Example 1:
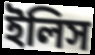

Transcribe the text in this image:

ইলিস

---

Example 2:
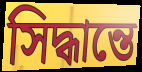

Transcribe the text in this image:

সিদ্ধান্তে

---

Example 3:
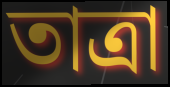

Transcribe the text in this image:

তাত্রা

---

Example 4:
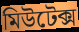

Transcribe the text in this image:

মিউটেক্স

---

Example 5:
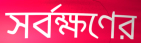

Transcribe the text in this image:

সর্বক্ষণের